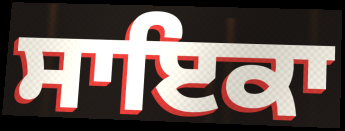
ਸਾਇਕਾ